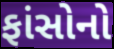
ફાંસોનો